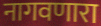
नागवणारा